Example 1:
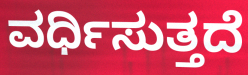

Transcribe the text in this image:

ವರ್ಧಿಸುತ್ತದೆ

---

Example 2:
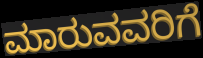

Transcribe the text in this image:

ಮಾರುವವರಿಗೆ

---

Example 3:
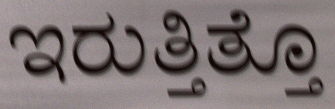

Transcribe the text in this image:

ಇರುತ್ತಿತ್ತೊ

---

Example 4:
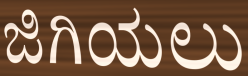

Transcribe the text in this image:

ಜಿಗಿಯಲು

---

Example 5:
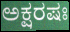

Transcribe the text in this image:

ಅಕ್ಷರಷಃ